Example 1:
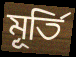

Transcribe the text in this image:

মূৰ্তি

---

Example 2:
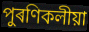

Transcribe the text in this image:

পুৰণিকলীয়া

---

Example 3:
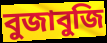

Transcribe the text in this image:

বুজাবুজি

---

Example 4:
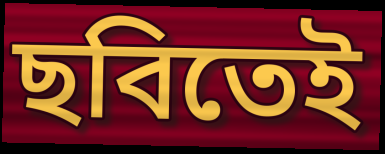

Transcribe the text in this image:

ছবিতেই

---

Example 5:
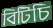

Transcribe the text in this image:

বিটিচি